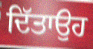
ਦਿੱਤਾਉਹ